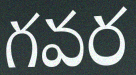
గవర